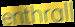
enthrall